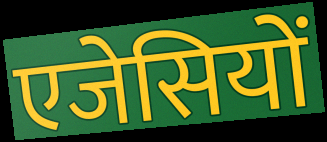
एजेसियों